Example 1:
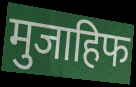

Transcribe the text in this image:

मुजाहिफ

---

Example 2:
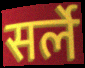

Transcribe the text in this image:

सर्ले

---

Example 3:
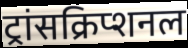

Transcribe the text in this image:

ट्रांसक्रिप्शनल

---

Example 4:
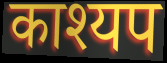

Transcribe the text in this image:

काश्यप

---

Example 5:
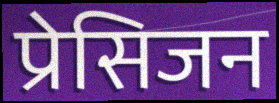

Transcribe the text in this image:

प्रेसिजन